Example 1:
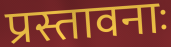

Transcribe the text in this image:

प्रस्तावनाः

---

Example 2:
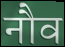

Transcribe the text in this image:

नौव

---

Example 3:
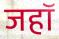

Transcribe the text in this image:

जहॉ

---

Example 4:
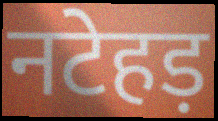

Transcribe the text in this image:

नटेहड़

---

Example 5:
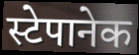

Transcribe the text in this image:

स्टेपानेक